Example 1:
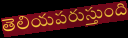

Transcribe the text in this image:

తెలియపరుస్తుంది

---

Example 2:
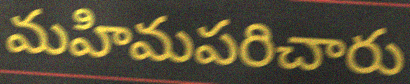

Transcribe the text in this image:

మహిమపరిచారు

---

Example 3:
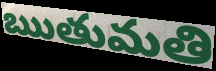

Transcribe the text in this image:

ఋతుమతి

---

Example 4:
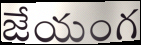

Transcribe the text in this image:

జేయంగ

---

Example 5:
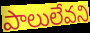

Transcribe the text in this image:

పాలులేవని